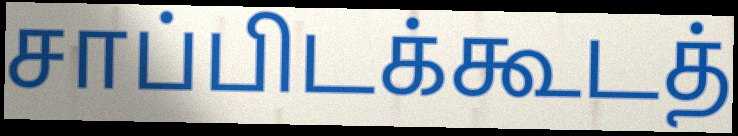
சாப்பிடக்கூடத்